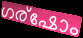
ഗര്ഷോം